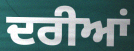
ਦਰੀਆਂ